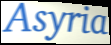
Asyria